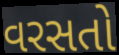
વરસતો